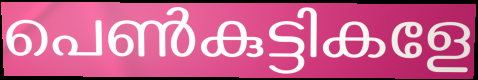
പെൺകുട്ടികളേ